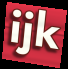
ijk